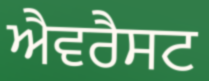
ਐਵਰੈਸਟ